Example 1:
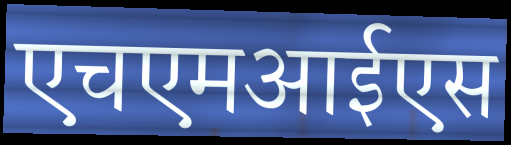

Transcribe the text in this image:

एचएमआईएस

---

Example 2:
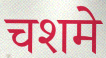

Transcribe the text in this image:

चशमे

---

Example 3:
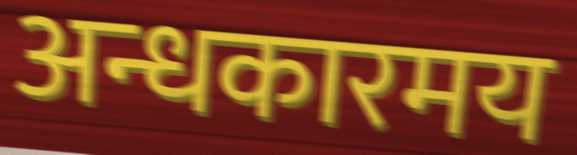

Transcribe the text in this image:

अन्धकारमय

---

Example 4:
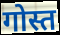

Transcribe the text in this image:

गोस्त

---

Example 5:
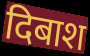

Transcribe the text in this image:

दिबाश